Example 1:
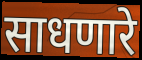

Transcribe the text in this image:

साधणारे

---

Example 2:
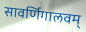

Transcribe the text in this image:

सावर्णिगालवम्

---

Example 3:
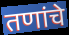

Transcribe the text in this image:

तणांचे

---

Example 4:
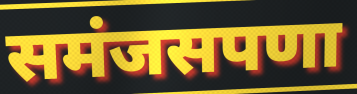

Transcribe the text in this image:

समंजसपणा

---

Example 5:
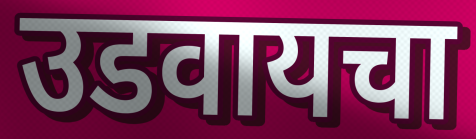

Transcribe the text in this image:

उडवायचा